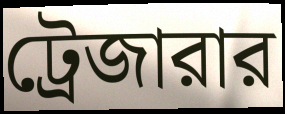
ট্রেজারার